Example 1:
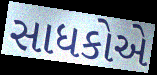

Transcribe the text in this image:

સાધકોએ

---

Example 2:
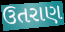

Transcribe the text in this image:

ઉતરાણ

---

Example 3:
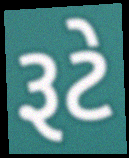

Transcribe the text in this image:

રૂટે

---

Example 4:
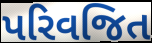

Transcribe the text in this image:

પરિવજિત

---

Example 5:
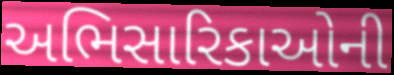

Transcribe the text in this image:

અભિસારિકાઓની